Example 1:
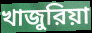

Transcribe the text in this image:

খাজুরিয়া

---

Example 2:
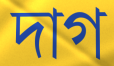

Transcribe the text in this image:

দাগ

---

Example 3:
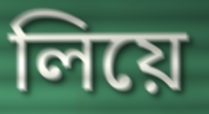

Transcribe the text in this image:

লিয়ে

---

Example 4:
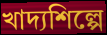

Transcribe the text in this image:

খাদ্যশিল্পে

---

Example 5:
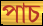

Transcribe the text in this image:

পাচ